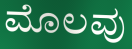
ಮೊಲವು